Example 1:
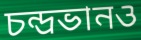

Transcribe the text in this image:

চন্দ্রভানও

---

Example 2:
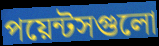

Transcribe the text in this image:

পয়েন্টসগুলো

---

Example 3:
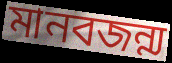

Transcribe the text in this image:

মানবজন্ম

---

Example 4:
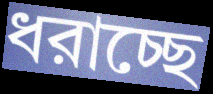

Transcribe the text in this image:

ধরাচ্ছে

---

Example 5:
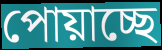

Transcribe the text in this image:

পোয়াচ্ছে